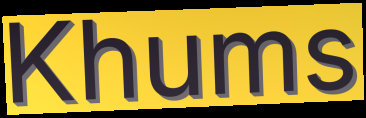
Khums